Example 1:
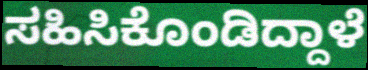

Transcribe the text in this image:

ಸಹಿಸಿಕೊಂಡಿದ್ದಾಳೆ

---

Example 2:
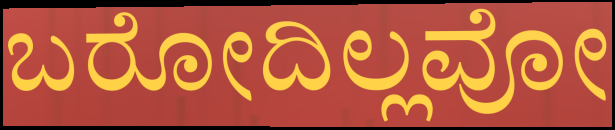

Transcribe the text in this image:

ಬರೋದಿಲ್ಲವೋ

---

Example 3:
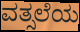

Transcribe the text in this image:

ವತ್ಸಲೆಯ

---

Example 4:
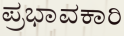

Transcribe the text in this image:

ಪ್ರಭಾವಕಾರಿ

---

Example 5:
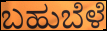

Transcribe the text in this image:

ಬಹುಬೆಳೆ